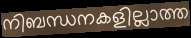
നിബന്ധനകളില്ലാത്ത